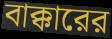
বাক্কারের